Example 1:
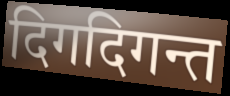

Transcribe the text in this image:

दिगदिगन्त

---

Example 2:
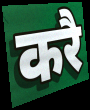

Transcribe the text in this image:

करै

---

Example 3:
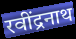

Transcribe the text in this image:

रवींद्रनाथ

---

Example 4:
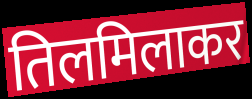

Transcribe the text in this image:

तिलमिलाकर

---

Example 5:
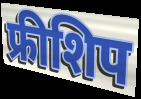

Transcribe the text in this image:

फ्रीशिप